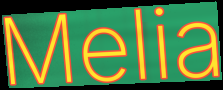
Melia